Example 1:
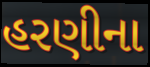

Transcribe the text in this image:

હરણીના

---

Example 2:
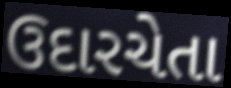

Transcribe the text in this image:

ઉદારચેતા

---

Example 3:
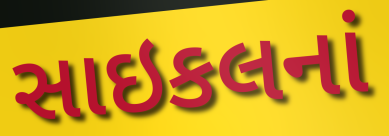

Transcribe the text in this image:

સાઇકલનાં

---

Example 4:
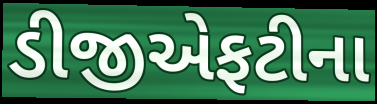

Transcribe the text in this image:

ડીજીએફટીના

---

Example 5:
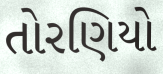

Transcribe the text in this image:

તોરણિયો